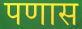
पणास